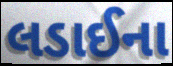
લડાઈના